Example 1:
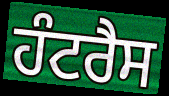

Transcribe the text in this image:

ਹੰਟਰੈਸ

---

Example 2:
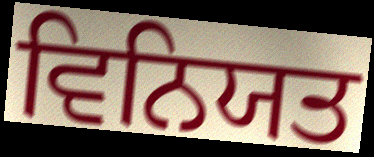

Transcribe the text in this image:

ਵਿਨਿਯਤ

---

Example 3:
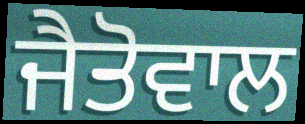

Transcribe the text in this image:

ਜੈਤੋਵਾਲ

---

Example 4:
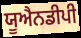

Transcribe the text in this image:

ਯੂਐਨਡੀਪੀ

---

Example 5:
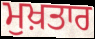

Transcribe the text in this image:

ਮੁਖ਼ਤਾਰ